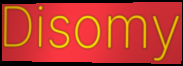
Disomy